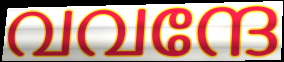
വവന്ദേ